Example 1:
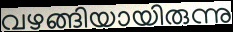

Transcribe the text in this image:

വഴങ്ങിയായിരുന്നു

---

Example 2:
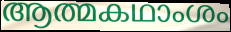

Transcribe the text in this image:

ആത്മകഥാംശം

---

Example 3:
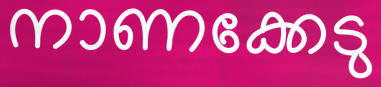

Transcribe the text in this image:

നാണക്കേടു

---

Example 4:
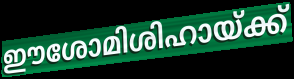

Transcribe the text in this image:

ഈശോമിശിഹായ്ക്ക്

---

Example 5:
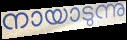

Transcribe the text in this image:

നായാടുന്നു